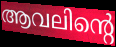
ആവലിന്റെ